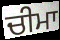
ਚੀਮਾ